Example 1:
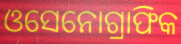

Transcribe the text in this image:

ଓସେନୋଗ୍ରାଫିକ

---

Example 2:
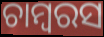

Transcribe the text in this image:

ଚାମ୍ବରସ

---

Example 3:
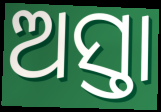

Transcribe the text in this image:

ଅସ୍ତା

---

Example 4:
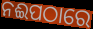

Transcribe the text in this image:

ନଈପଠାରେ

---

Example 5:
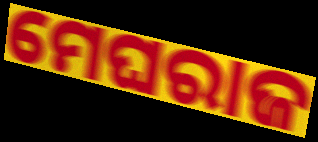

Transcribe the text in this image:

ମେଘରାଜ